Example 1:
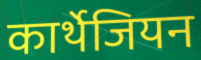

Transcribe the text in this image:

कार्थेजियन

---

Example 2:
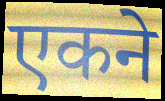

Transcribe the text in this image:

एकने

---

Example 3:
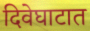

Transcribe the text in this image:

दिवेघाटात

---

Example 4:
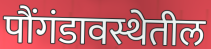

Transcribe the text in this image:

पौंगंडावस्थेतील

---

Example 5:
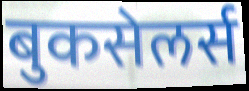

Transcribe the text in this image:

बुकसेलर्स